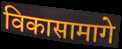
विकासामागे